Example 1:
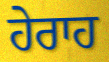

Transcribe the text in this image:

ਹੇਰਾਹ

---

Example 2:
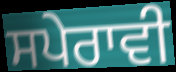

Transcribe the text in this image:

ਸਪੇਰਾਵੀ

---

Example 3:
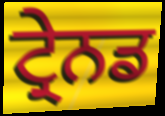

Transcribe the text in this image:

ਟ੍ਰੇਨਡ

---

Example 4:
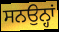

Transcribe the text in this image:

ਸਨਉਨ੍ਹਾਂ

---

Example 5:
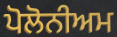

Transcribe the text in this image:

ਪੋਲੋਨੀਅਮ